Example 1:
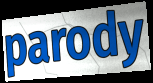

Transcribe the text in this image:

parody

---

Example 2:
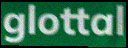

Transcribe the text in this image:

glottal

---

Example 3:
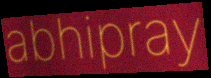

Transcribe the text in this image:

abhipray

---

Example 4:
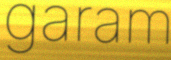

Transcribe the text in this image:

garam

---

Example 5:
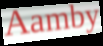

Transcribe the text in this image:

Aamby